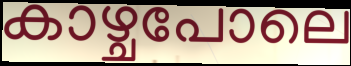
കാഴ്ചപോലെ